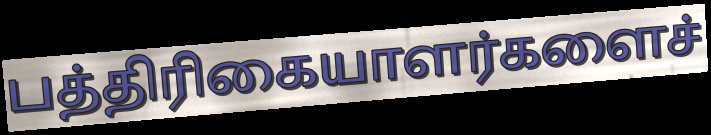
பத்திரிகையாளர்களைச்